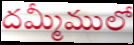
దమ్మీములో